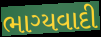
ભાગ્યવાદી